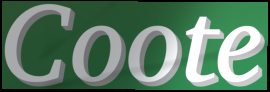
Coote